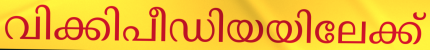
വിക്കിപീഡിയയിലേക്ക്